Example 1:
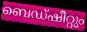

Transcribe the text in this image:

ബെഡ്ഷീറ്റും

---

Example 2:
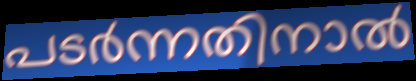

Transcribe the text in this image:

പടർന്നതിനാൽ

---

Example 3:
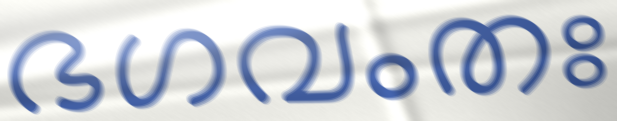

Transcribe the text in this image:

ഭഗവംതഃ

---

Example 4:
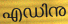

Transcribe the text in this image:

എഡിനു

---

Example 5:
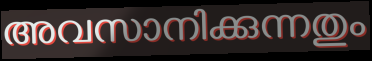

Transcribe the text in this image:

അവസാനിക്കുന്നതും